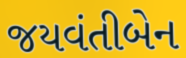
જયવંતીબેન